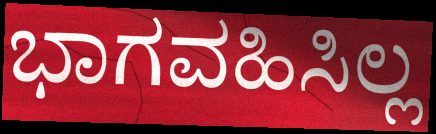
ಭಾಗವಹಿಸಿಲ್ಲ